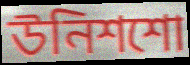
উনিশশো